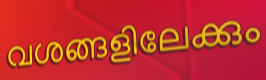
വശങ്ങളിലേക്കും